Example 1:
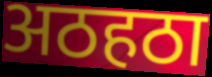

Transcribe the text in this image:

अठहठा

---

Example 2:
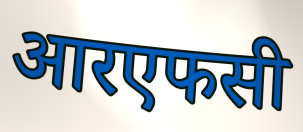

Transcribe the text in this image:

आरएफसी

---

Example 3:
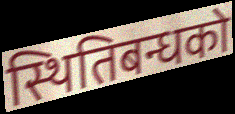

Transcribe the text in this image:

स्थितिबन्धको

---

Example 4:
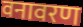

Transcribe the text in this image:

वनावरण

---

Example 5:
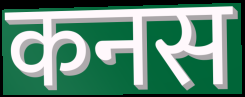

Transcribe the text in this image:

कनस